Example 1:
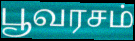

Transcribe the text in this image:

பூவரசம்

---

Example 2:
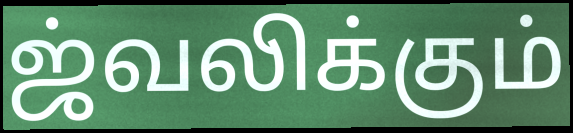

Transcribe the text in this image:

ஜ்வலிக்கும்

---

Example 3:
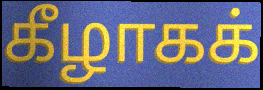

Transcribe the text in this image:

கீழாகக்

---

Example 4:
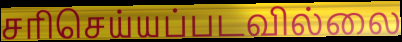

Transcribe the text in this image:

சரிசெய்யப்படவில்லை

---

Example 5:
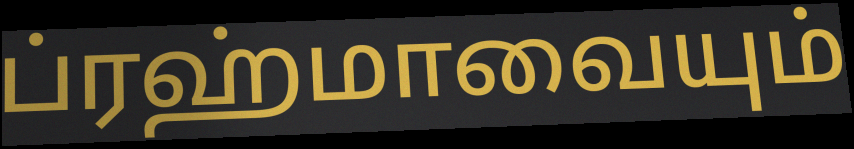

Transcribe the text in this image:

ப்ரஹ்மாவையும்